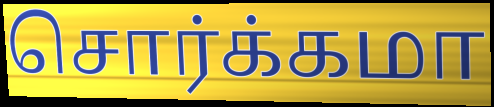
சொர்க்கமா